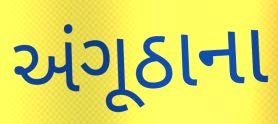
અંગૂઠાના